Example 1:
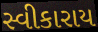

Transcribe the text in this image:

સ્વીકારાય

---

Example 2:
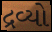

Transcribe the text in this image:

દ્રવ્યો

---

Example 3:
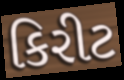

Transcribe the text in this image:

કિરીટ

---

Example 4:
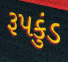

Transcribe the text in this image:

રૂપકુંડ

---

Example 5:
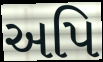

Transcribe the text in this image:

અપિ